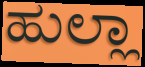
ಹುಲ್ಲಾ